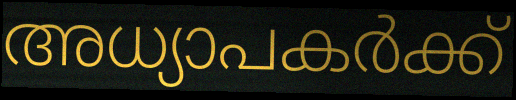
അധ്യാപകർക്ക്